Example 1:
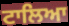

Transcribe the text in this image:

ਟਾਲਿਆ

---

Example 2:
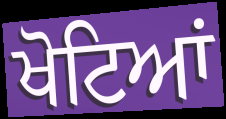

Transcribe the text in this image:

ਖੋਟਿਆਂ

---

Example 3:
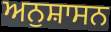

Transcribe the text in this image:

ਅਨੁਸ਼ਾਸਨ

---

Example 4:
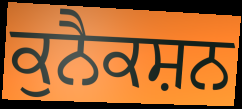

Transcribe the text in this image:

ਕੁਨੈਕਸ਼ਨ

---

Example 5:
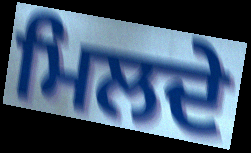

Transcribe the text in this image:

ਮਿਲਦੇ